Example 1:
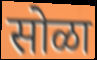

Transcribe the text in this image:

सोळा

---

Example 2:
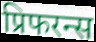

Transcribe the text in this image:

प्रिफरन्स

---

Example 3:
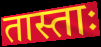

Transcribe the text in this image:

तास्ताः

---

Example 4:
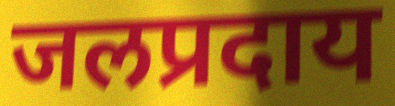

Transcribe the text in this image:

जलप्रदाय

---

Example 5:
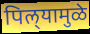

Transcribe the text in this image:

पिल्यामुळे